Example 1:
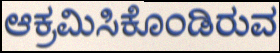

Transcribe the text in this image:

ಆಕ್ರಮಿಸಿಕೊಂಡಿರುವ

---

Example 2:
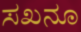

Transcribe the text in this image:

ಸಖನೂ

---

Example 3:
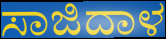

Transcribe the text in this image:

ಸಾಜಿದಾಳ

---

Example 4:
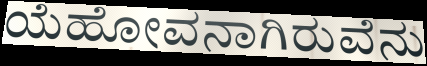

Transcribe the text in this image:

ಯೆಹೋವನಾಗಿರುವೆನು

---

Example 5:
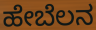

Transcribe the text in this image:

ಹೇಬೆಲನ